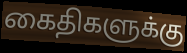
கைதிகளுக்கு